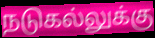
நடுகல்லுக்கு